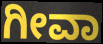
ಗೀವಾ